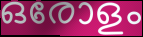
ഒരോളം